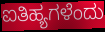
ಐತಿಹ್ಯಗಳೆಂದು